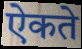
ऐकते